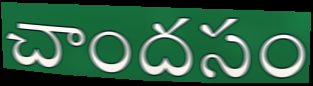
చాందసం